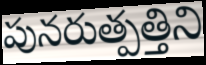
పునరుత్పత్తిని